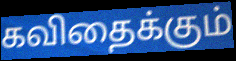
கவிதைக்கும்